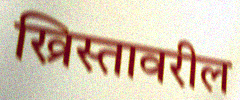
ख्रिस्तावरील